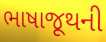
ભાષાજૂથની